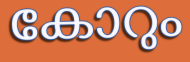
കോറും